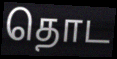
தொட